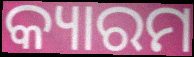
କ୍ୟାରମ